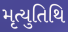
મૃત્યુતિથિ